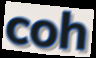
coh